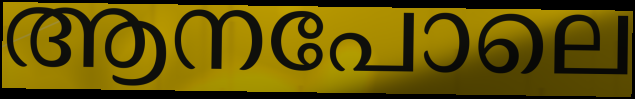
ആനപോലെ